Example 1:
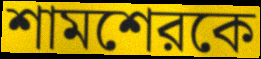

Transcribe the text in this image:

শামশেরকে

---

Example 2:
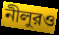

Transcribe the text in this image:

নীলুরও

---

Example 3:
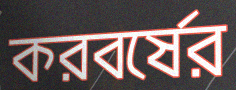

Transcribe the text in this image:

করবর্ষের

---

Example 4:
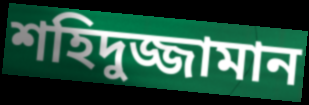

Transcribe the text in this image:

শহিদুজ্জামান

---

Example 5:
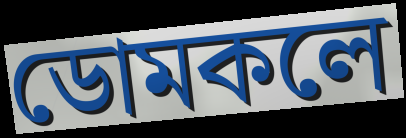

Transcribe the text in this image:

ডোমকলে